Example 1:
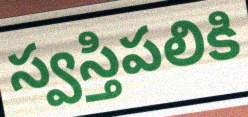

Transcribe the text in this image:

స్వస్తిపలికి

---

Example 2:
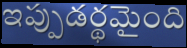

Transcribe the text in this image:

ఇప్పుడర్థమైంది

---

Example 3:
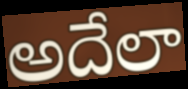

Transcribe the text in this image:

అదేలా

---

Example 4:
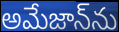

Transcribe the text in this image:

అమేజాన్‌ను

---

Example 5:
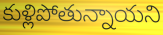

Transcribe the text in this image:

కుళ్లిపోతున్నాయని